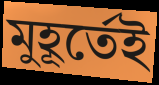
মুহূর্তেই